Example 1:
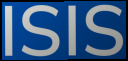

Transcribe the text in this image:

ISIS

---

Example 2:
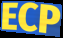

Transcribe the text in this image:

ECP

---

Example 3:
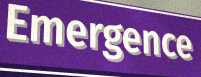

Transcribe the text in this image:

Emergence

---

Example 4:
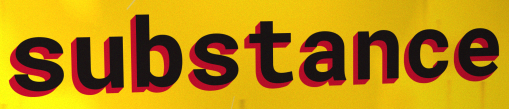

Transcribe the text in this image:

substance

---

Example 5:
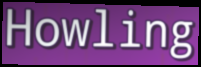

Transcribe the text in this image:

Howling